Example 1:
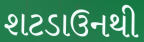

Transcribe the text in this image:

શટડાઉનથી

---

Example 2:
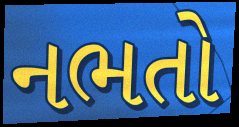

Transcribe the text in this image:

નભતો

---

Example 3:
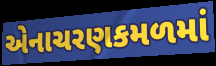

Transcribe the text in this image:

એનાચરણકમળમાં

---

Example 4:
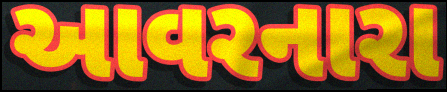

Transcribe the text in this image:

આવરનારા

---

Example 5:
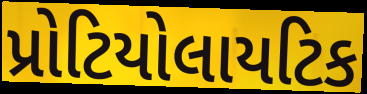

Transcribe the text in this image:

પ્રોટિયોલાયટિક